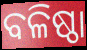
ବଳିଷ୍ଠା